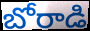
బోరాడి